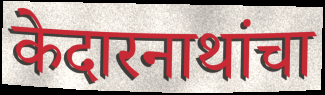
केदारनाथांचा